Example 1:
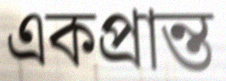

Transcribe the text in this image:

একপ্রান্ত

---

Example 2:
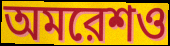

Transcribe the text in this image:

অমরেশও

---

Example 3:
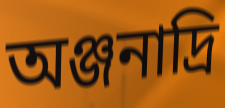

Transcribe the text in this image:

অঞ্জনাদ্রি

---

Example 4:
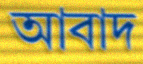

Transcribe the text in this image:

আবাদ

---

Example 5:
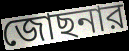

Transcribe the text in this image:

জোছনার